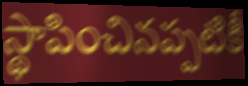
స్థాపించినప్పటికీ